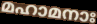
മഹാമനാഃ